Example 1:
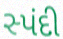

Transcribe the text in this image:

સ્પંદી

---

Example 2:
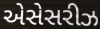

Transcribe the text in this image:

એસેસરીઝ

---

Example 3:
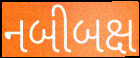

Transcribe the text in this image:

નબીબક્ષ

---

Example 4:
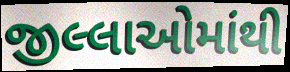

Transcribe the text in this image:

જીલ્લાઓમાંથી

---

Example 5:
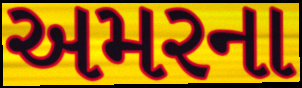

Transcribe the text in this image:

અમરના